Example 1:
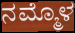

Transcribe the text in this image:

ನಮ್ಮೊಳ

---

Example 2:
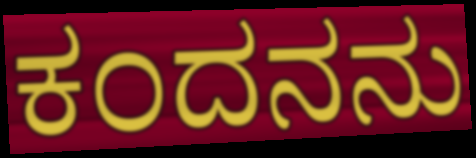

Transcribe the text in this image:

ಕಂದನನು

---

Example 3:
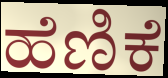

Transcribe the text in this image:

ಹೆಣಿಕೆ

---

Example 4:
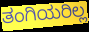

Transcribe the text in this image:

ತಂಗಿಯರಿಲ್ಲ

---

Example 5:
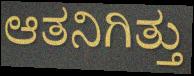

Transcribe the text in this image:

ಆತನಿಗಿತ್ತು